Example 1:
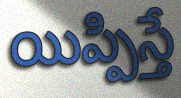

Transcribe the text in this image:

యిప్పిస్తే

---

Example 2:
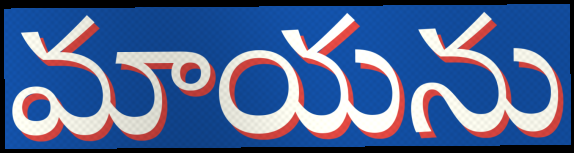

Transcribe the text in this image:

మాయను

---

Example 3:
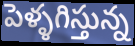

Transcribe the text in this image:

పెళ్ళగిస్తున్న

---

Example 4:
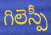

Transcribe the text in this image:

గిలెస్పీ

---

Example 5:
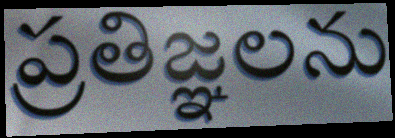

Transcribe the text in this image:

ప్రతిజ్ఞలను